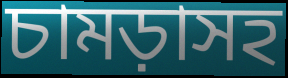
চামড়াসহ